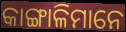
କାଙ୍ଗାଳିମାନେ